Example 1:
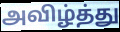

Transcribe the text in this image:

அவிழ்த்து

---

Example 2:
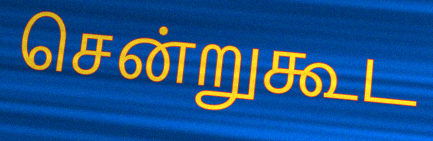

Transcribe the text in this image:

சென்றுகூட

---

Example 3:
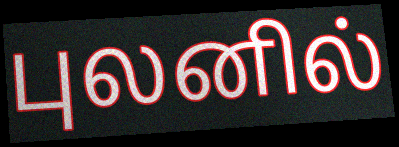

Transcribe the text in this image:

புலனில்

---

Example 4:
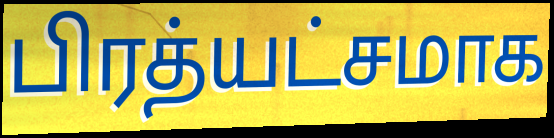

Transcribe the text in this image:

பிரத்யட்சமாக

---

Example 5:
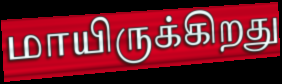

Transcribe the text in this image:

மாயிருக்கிறது